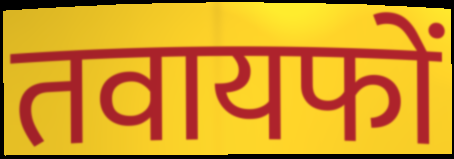
तवायफों